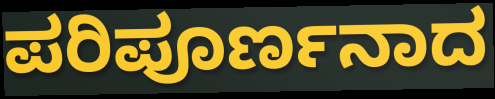
ಪರಿಪೂರ್ಣನಾದ